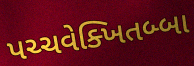
પચ્ચવેક્ખિતબ્બા